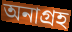
অনাগ্রহ